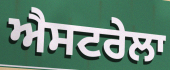
ਐਸਟਰੇਲਾ